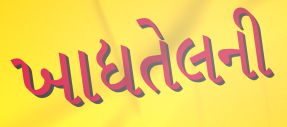
ખાદ્યતેલની